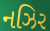
નઝિર